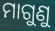
ମାଗୁଣୁ